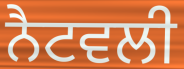
ਨੈਟਵਲੀ